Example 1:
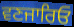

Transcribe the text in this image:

ਵਣਜਾਰਿਓ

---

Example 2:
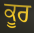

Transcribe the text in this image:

ਕੂਰ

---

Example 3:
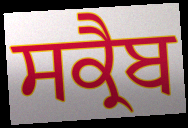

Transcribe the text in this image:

ਸਕ੍ਰੈਬ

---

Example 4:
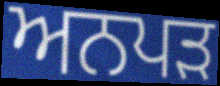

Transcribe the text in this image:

ਅਨਪੜ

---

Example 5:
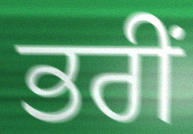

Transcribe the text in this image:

ਭਰੀਂ